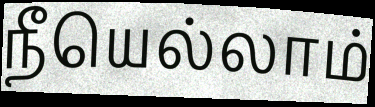
நீயெல்லாம்